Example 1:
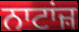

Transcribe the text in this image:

ਨਾਟਾਂਜ਼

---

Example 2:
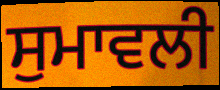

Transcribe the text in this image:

ਸੁਮਾਵਲੀ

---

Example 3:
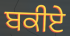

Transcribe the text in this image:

ਬਕੀਏ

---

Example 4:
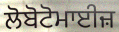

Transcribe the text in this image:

ਲੋਬੋਟੋਮਾਈਜ਼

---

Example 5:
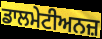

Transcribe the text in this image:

ਡਾਲਮੇਟੀਅਨਜ਼